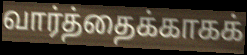
வார்த்தைக்காகக்